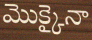
మొక్కైనా